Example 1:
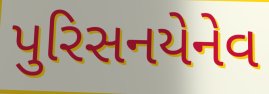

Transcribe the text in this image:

પુરિસનયેનેવ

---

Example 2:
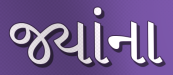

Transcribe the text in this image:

જ્યાંના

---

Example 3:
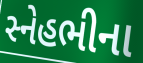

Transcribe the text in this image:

સ્નેહભીના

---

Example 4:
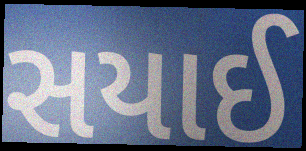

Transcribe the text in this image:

સયાઈ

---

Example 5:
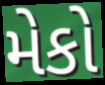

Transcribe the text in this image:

મેકો